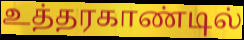
உத்தரகாண்டில்